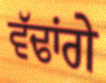
ਵੱਢਾਂਗੇ